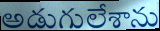
అడుగులేశాను